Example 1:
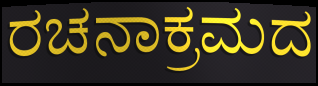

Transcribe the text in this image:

ರಚನಾಕ್ರಮದ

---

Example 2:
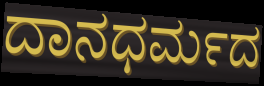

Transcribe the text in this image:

ದಾನಧರ್ಮದ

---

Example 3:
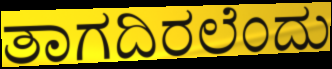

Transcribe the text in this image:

ತಾಗದಿರಲೆಂದು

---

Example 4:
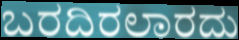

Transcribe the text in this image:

ಬರದಿರಲಾರದು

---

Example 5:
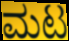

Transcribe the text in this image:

ಮಟ